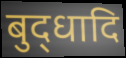
बुद्धादि